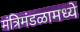
मंत्रिमंडळामध्ये